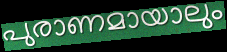
പുരാണമായാലും